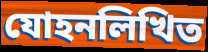
যোহনলিখিত